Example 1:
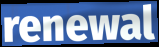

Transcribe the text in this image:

renewal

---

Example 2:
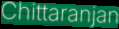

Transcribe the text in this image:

Chittaranjan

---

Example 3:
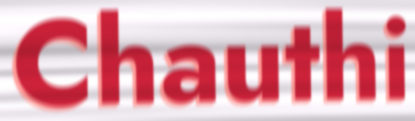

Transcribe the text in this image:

Chauthi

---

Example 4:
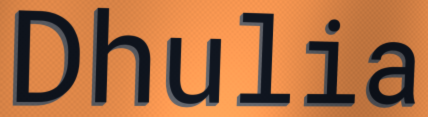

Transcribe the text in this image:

Dhulia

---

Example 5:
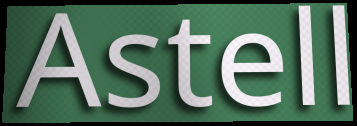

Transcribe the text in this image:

Astell